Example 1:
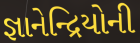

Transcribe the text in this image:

જ્ઞાનેન્દ્રિયોની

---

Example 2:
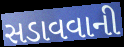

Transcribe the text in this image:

સડાવવાની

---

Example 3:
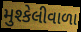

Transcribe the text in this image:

મુશ્કેલીવાળા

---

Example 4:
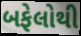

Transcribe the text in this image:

બફેલોથી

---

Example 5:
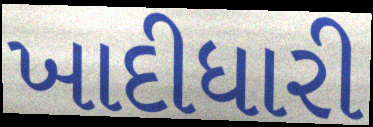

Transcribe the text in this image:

ખાદીધારી